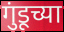
गुंडूच्या